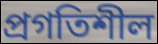
প্রগতিশীল